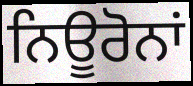
ਨਿਊਰੋਨਾਂ